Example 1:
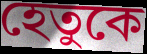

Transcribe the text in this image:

হেতুকে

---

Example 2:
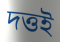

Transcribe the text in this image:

দত্তই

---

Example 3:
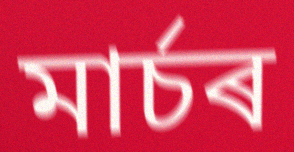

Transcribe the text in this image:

মাৰ্চৰ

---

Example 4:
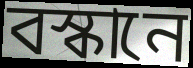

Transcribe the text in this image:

বস্কানে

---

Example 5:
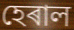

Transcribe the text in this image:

হেৰাল